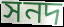
সনদ